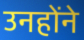
उनहोंने